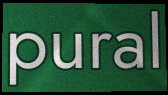
pural